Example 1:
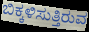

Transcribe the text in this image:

ಬಿಕ್ಕಳಿಸುತ್ತಿರುವ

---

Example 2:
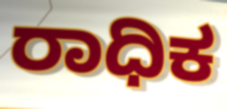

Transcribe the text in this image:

ರಾಧಿಕ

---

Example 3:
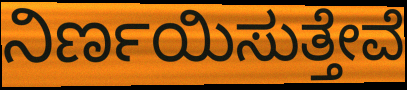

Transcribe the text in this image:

ನಿರ್ಣಯಿಸುತ್ತೇವೆ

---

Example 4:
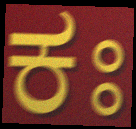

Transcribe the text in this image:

ಕಃ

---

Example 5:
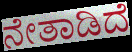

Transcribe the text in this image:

ನೇತಾಡಿದೆ